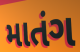
માતંગ